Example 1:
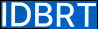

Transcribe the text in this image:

IDBRT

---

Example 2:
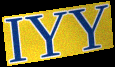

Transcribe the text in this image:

IYY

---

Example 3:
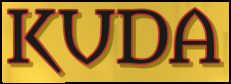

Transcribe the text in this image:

KUDA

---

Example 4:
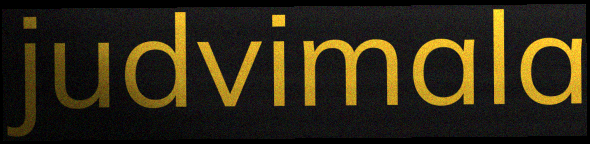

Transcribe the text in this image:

judvimala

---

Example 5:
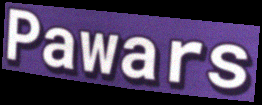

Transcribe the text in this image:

Pawars